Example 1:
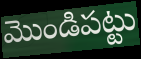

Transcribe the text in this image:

మొండిపట్టు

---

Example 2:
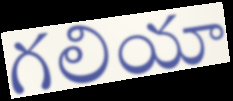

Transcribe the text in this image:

గలియా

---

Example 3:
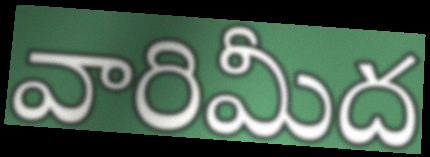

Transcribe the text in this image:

వారిమీద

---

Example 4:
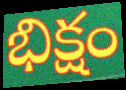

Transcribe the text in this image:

భిక్షం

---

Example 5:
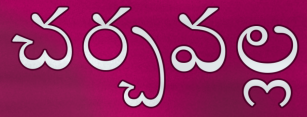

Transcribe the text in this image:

చర్చవల్ల